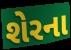
શેરના